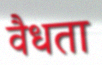
वैधता